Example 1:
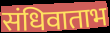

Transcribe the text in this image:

संधिवाताभ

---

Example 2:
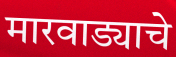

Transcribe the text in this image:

मारवाड्याचे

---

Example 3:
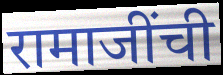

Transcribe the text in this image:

रामाजींची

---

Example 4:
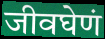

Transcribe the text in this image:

जीवघेणं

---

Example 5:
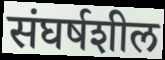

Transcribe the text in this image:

संघर्षशील